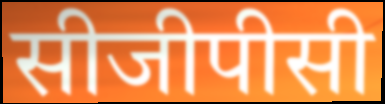
सीजीपीसी